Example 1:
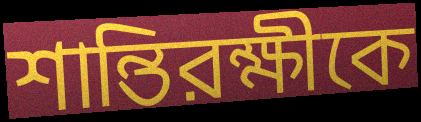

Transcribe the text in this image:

শান্তিরক্ষীকে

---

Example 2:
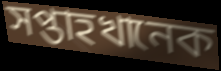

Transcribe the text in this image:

সপ্তাহখানেক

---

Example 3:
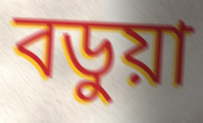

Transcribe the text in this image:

বডুয়া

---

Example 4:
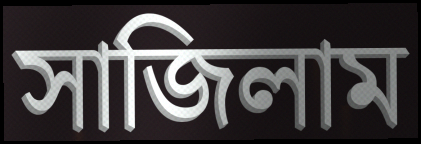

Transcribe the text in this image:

সাজিলাম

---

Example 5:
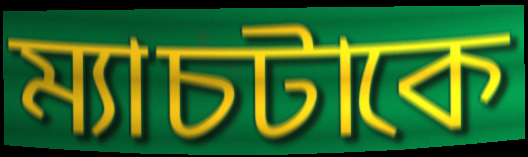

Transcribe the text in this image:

ম্যাচটাকে